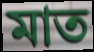
মাত